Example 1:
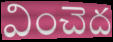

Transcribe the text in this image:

వించెద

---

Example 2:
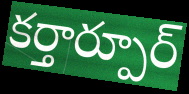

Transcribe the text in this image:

కర్తార్పూర్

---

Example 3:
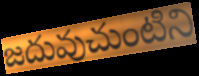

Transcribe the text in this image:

జదువుచుంటిని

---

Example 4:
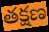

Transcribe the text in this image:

తక్షణ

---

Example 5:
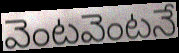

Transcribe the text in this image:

వెంటవెంటనే